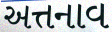
અત્તનાવ